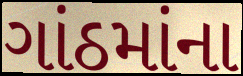
ગાંઠમાંના